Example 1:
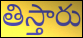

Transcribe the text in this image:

తిస్తారు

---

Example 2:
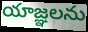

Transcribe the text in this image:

యాజ్ఞలను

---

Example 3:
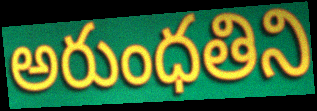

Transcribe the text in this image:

అరుంధతిని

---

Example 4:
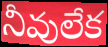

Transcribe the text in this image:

నీవులేక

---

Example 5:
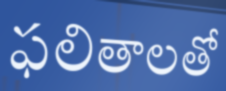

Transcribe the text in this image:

ఫలితాలతో